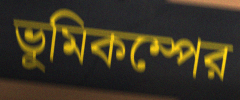
ভূমিকম্পের